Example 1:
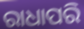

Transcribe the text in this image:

ରାଧାପରି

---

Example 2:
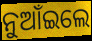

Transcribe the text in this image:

ନୁଆଁଇଲେ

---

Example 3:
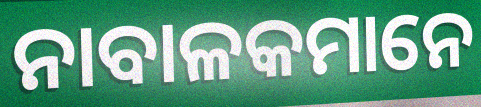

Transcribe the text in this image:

ନାବାଳକମାନେ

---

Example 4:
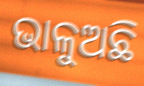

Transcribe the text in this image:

ଭାଳୁଅଛି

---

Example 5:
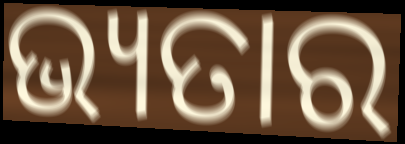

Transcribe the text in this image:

ଭ୍ୟତାର